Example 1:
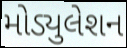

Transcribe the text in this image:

મોડ્યુલેશન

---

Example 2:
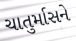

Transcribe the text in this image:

ચાતુર્માસને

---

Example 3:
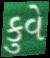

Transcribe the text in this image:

કુવે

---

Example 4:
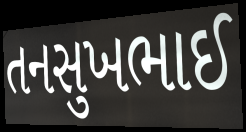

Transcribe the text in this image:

તનસુખભાઈ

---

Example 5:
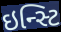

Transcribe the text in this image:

ઇન્સ્ટિ